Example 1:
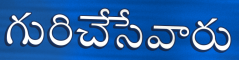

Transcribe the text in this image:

గురిచేసేవారు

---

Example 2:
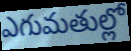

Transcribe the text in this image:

ఎగుమతుల్లో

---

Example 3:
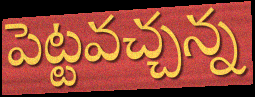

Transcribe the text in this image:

పెట్టవచ్చన్న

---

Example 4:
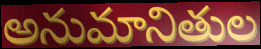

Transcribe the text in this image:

అనుమానితుల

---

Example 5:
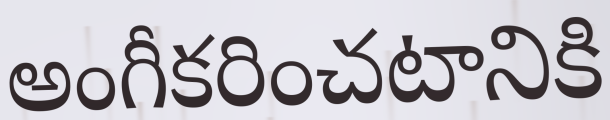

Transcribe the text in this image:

అంగీకరించటానికి